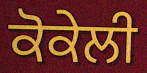
ਕੋਕੇਲੀ